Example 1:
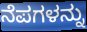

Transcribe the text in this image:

ನೆಪಗಳನ್ನು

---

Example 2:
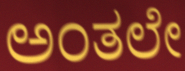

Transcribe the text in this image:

ಅಂತಲೇ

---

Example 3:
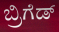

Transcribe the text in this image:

ಬ್ರಿಗೆಡ್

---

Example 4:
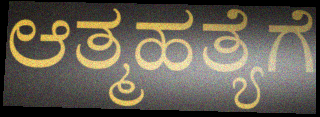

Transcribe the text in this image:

ಆತ್ಮಹತ್ಯೆಗೆ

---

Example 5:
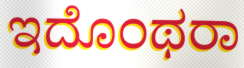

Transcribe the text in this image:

ಇದೊಂಥರಾ